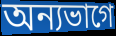
অন্যভাগে